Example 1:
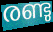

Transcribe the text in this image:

രണ്ടു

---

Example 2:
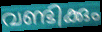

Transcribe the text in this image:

വണ്ടിക്കും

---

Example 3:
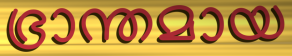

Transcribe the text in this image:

ഭ്രാന്തമായ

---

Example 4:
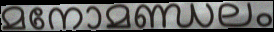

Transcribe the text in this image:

മനോമണ്ഡലം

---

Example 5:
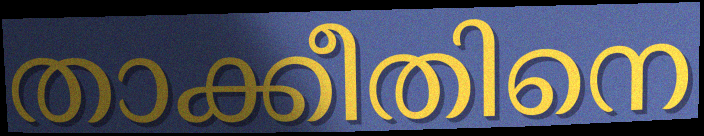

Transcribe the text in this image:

താക്കീതിനെ